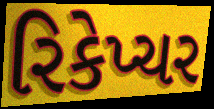
રિકેપ્ચર